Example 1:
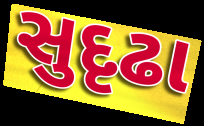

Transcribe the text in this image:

સુદૃઢા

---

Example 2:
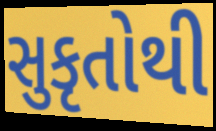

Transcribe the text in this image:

સુકૃતોથી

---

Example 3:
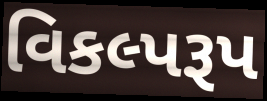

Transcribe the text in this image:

વિકલ્પરૂપ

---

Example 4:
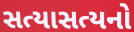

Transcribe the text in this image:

સત્યાસત્યનો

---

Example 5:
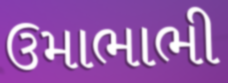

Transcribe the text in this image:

ઉમાભાભી